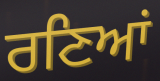
ਰਣਿਆਂ